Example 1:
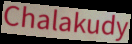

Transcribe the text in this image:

Chalakudy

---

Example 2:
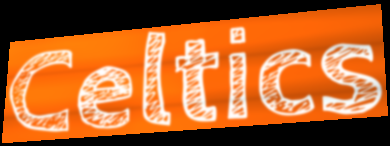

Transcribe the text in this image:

Celtics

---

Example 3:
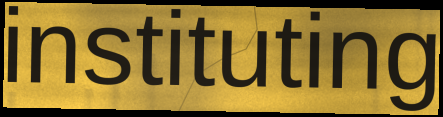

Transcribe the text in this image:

instituting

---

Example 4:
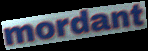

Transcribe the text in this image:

mordant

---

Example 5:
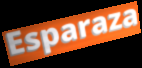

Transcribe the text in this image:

Esparaza